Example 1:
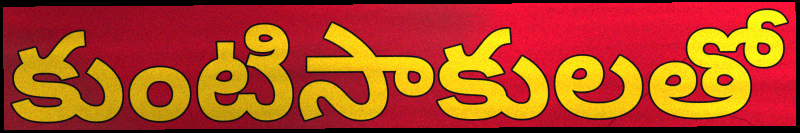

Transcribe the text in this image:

కుంటిసాకులతో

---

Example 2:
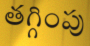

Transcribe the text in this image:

తగ్గింపు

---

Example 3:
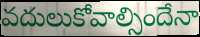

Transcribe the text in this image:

వదులుకోవాల్సిందేనా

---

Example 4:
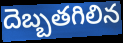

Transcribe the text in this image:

దెబ్బతగిలిన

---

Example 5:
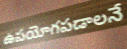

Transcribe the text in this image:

ఉపయోగపడాలనే